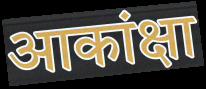
आकांक्षा